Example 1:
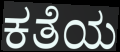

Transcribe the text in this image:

ಕತೆಯ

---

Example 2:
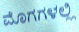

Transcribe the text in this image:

ಮೊಗಗಳಲ್ಲಿ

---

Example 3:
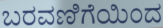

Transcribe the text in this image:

ಬರವಣಿಗೆಯಿಂದ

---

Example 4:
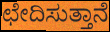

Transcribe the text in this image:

ಛೇದಿಸುತ್ತಾನೆ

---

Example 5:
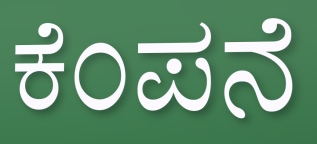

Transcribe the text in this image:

ಕೆಂಪನೆ